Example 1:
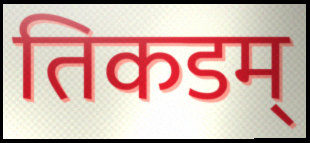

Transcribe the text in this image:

तिकडम्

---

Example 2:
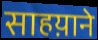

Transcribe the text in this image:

साहय़ाने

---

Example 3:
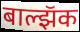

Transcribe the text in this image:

बाल्झॅक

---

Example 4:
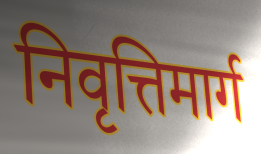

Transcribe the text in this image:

निवृत्तिमार्ग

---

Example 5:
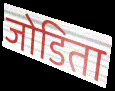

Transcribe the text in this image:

जोडिता